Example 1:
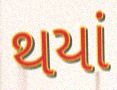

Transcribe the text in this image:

થયાં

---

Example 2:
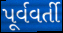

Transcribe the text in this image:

પૂર્વવર્તી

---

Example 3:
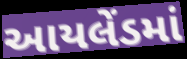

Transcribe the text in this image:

આયલેંડમાં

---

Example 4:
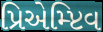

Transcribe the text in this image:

પ્રિએમ્પ્ટિવ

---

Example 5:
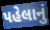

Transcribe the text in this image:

પહેલાનું